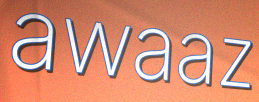
awaaz